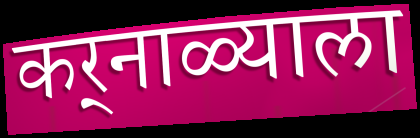
कर्नाळ्याला